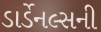
ડાર્ડેનલ્સની